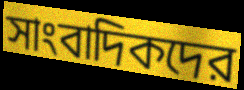
সাংবাদিকদের